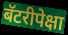
बॅटरीपेक्षा